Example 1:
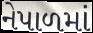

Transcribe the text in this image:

નેપાળમાં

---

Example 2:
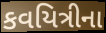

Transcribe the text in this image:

કવયિત્રીના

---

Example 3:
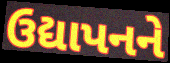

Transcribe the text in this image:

ઉદ્યાપનને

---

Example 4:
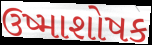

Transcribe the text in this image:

ઉષ્માશોષક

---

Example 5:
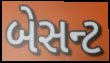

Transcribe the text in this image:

બેસન્ટ